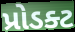
પ્રોડક્ટ